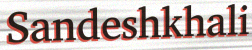
Sandeshkhali